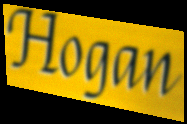
Hogan